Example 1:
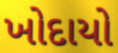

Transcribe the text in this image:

ખોદાયો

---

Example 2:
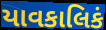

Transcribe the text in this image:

યાવકાલિકં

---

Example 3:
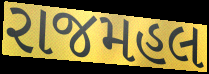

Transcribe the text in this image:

રાજમહલ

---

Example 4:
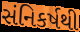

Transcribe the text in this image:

સંનિકર્ષથી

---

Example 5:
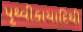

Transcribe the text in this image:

પૃથ્વીકાયાદિથી